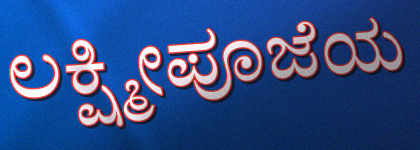
ಲಕ್ಷ್ಮೀಪೂಜೆಯ